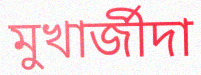
মুখার্জীদা